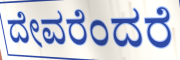
ದೇವರೆಂದರೆ